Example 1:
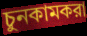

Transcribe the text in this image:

চুনকামকরা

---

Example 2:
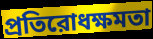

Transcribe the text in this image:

প্রতিরোধক্ষমতা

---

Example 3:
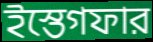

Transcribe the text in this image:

ইস্তেগফার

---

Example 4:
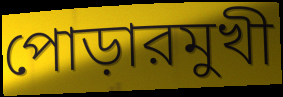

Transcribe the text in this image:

পোড়ারমুখী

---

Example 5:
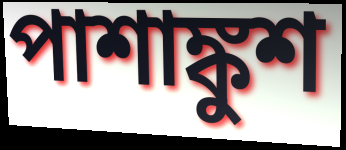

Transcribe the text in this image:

পাশাঙ্কুশ